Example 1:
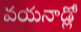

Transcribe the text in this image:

వయనాడ్లో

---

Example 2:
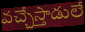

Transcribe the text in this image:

వచ్చేస్తాడులే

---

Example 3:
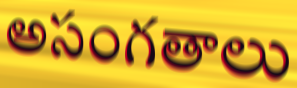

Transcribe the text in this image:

అసంగతాలు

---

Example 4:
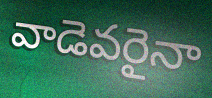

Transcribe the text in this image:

వాడెవరైనా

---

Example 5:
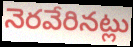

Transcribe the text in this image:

నెరవేరినట్లు